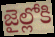
జైల్లోకి